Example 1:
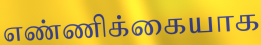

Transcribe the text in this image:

எண்ணிக்கையாக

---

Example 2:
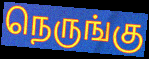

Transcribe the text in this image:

நெருங்கு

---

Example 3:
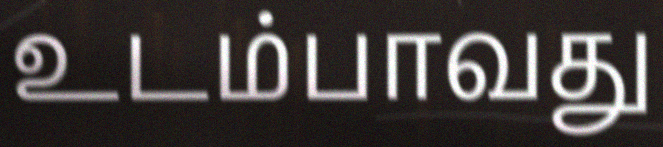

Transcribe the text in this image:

உடம்பாவது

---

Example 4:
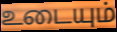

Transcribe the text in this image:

உடையும்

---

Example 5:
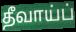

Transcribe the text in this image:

தீவாய்ப்